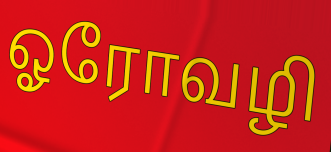
ஓரோவழி